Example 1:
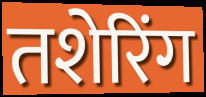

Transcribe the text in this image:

तशेरिंग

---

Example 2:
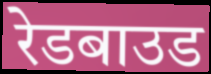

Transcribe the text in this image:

रेडबाउड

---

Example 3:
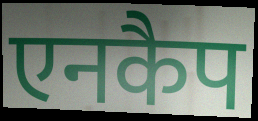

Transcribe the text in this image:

एनकैप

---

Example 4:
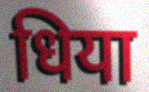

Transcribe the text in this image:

धिया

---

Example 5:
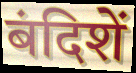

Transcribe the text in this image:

बंदिशें